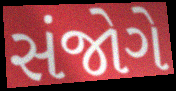
સંજોગે